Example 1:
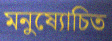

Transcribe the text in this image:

মনুষ্যোচিত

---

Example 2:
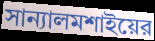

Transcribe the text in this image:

সান্যালমশাইয়ের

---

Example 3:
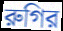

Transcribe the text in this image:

রুগির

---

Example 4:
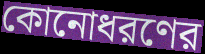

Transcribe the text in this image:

কোনোধরণের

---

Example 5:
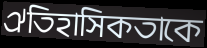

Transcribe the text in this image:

ঐতিহাসিকতাকে